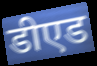
डीएड